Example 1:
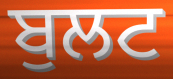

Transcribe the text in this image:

ਬੁਲਟ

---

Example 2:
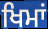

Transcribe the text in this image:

ਖਿਮਾਂ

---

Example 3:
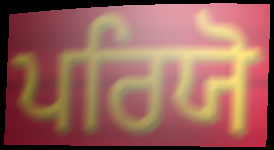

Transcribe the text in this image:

ਪਰਿਯੋ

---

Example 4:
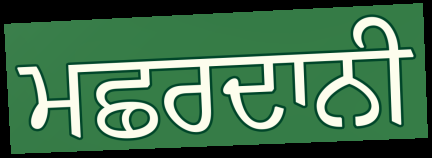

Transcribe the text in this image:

ਮਛਰਦਾਨੀ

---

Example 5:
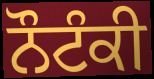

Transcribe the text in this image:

ਨੌਟੰਕੀ